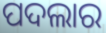
ପଦଲାର